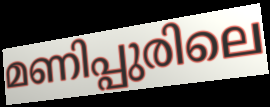
മണിപ്പുരിലെ